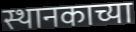
स्थानकाच्या